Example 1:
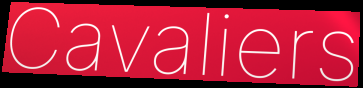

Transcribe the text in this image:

Cavaliers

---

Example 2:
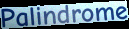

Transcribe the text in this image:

Palindrome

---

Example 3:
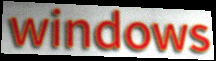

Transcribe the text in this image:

windows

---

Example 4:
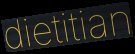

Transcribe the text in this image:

dietitian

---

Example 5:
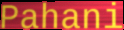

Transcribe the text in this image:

Pahani